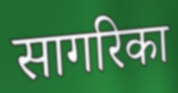
सागरिका